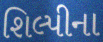
શિલ્પીના